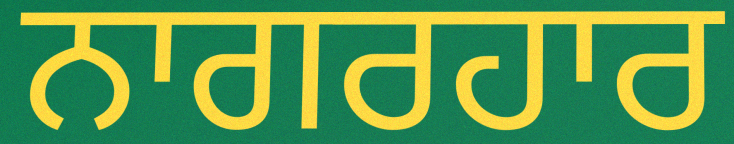
ਨਾਗਰਹਾਰ